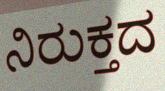
ನಿರುಕ್ತದ